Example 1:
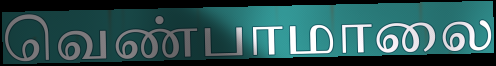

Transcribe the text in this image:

வெண்பாமாலை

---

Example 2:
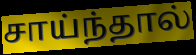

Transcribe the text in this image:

சாய்ந்தால்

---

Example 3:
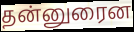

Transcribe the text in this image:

தன்னுரைன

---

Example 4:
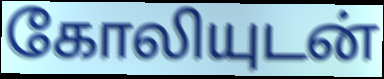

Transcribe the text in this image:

கோலியுடன்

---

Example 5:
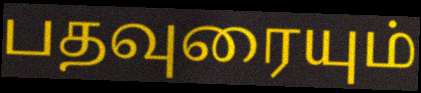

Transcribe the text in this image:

பதவுரையும்